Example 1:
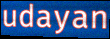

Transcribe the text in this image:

udayan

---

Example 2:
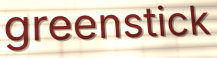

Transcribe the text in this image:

greenstick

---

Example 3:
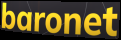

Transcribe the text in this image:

baronet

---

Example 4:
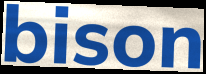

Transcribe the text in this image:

bison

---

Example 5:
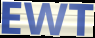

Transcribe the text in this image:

EWT